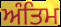
ਅੰਤਿਮ